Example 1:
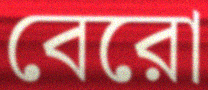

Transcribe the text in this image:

বেরো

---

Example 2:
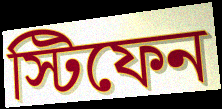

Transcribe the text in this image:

স্টিফেন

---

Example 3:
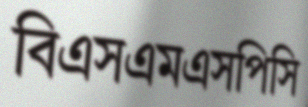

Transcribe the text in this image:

বিএসএমএসপিসি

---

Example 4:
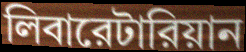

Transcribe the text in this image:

লিবারেটারিয়ান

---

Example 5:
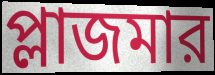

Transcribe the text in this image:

প্লাজমার